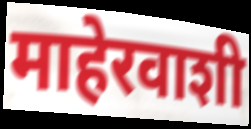
माहेरवाशी